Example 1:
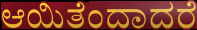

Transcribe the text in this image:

ಆಯಿತೆಂದಾದರೆ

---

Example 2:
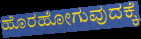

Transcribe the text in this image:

ಹೊರಹೋಗುವುದಕ್ಕೆ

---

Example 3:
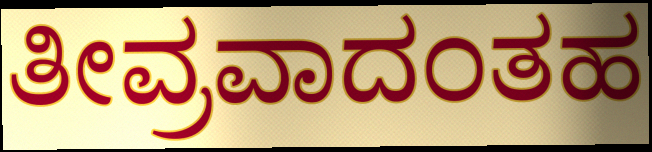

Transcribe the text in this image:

ತೀವ್ರವಾದಂತಹ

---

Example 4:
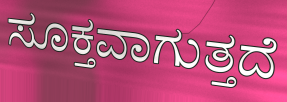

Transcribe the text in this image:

ಸೂಕ್ತವಾಗುತ್ತದೆ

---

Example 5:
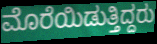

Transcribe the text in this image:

ಮೊರೆಯಿಡುತ್ತಿದ್ದರು